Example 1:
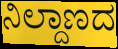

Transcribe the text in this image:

ನಿಲ್ದಾಣದ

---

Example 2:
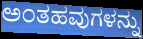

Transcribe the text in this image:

ಅಂತಹವುಗಳನ್ನು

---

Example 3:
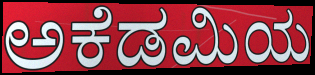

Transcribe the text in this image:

ಅಕೆಡಮಿಯ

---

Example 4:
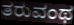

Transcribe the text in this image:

ತರುವಂಥ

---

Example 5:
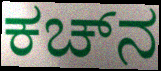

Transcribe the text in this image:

ಕಚ್‌ನ